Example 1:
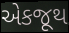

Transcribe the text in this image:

એકજૂથ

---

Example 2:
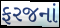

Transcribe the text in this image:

ફરજનાં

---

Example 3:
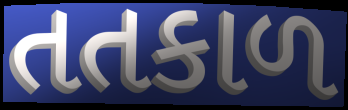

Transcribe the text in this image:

તતકાળ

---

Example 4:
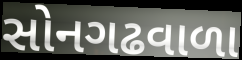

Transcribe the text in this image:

સોનગઢવાળા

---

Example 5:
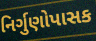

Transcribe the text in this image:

નિર્ગુણોપાસક